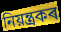
নিয়ন্ত্ৰকৰ